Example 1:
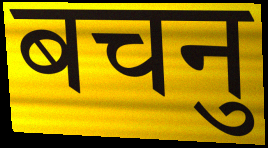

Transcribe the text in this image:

बचनु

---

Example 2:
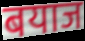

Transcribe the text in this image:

बयाज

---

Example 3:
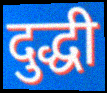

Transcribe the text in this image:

दुद्धी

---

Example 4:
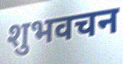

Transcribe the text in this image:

शुभवचन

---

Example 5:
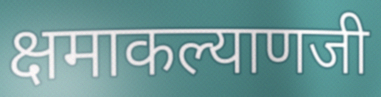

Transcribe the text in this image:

क्षमाकल्याणजी